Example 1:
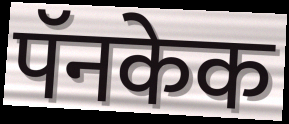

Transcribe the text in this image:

पॅनकेक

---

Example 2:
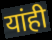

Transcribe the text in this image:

यांही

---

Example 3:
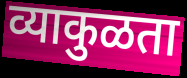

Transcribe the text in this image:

व्याकुळता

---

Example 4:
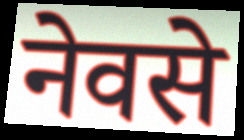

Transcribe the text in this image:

नेवसे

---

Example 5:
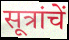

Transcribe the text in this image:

सूत्रांचें